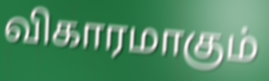
விகாரமாகும்